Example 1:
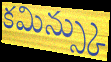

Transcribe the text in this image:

కమిన్స్కు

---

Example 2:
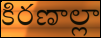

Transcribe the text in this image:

కిరణాల్లా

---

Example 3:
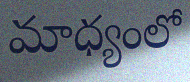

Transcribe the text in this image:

మాధ్యంలో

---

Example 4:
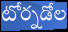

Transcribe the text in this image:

టోర్నడోల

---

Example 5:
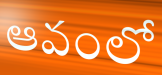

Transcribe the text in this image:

ఆవంలో